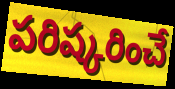
పరిష్కరించే